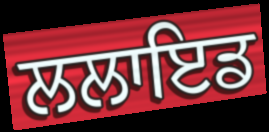
ਲਲਾਇਡ